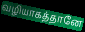
வழியாகத்தானே